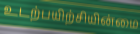
உடற்பயிற்சியின்மை